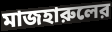
মাজহারুলের